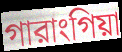
গারাংগিয়া